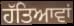
ਹੱਤਿਆਵਾਂ